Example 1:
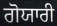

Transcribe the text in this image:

ਗੋਯਾਰੀ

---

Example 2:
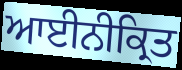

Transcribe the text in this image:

ਆਈਨੀਕ੍ਰਿਤ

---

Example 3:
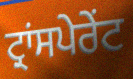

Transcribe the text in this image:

ਟ੍ਰਾਂਸਪੇਰੇਂਟ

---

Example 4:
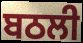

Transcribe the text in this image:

ਬਠਲੀ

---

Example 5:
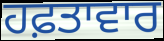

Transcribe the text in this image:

ਹਫ਼ਤਾਵਾਰ